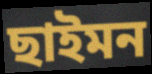
ছাইমন